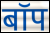
बॉप